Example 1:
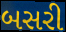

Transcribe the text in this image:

બસરી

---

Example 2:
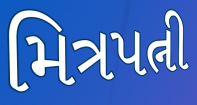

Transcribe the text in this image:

મિત્રપત્ની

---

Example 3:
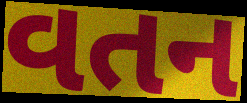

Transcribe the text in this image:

વતન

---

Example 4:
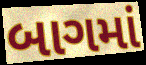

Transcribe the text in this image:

બાગમાં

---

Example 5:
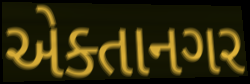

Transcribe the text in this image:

એક્તાનગર